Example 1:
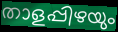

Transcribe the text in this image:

താളപ്പിഴയും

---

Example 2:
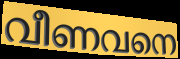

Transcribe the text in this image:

വീണവനെ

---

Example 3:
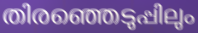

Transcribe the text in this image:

തിരഞ്ഞെടുപ്പിലും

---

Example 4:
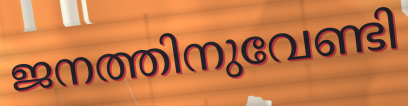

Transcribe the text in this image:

ജനത്തിനുവേണ്ടി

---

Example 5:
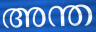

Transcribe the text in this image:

അന്ത